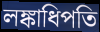
লঙ্কাধিপতি